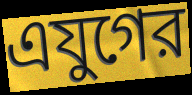
এযুগের